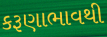
કરૂણાભાવથી